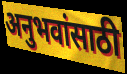
अनुभवांसाठी